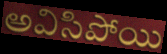
అవిసిపోయి